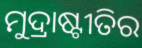
ମୁଦ୍ରାଷ୍ଟୀତିର